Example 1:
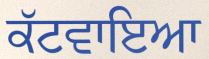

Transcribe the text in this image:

ਕੱਟਵਾਇਆ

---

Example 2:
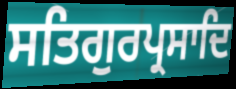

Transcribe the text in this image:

ਸਤਿਗੁਰਪ੍ਰਸਾਦਿ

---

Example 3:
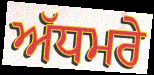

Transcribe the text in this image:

ਅੱਧਮਰੇ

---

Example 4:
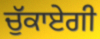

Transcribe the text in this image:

ਚੁੱਕਾਏਗੀ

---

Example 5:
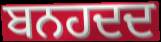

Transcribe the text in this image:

ਬਨਹਦਦ